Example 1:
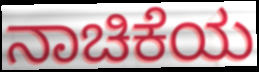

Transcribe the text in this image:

ನಾಚಿಕೆಯ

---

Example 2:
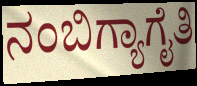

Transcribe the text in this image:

ನಂಬಿಗ್ಯಾಗೈತಿ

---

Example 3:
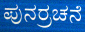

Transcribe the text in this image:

ಪುನರ್ರಚನೆ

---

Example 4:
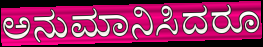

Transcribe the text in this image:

ಅನುಮಾನಿಸಿದರೂ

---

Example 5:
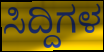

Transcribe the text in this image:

ಸಿದ್ದಿಗಳ